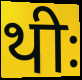
थीः